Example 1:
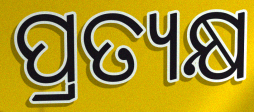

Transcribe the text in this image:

ପ୍ରତ୍ଯକ୍ଷ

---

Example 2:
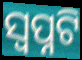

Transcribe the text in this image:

ସ୍ୱପ୍ନଟି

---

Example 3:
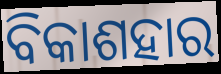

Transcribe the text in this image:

ବିକାଶହାର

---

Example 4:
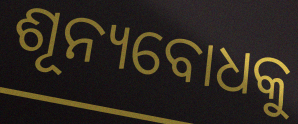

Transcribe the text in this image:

ଶୂନ୍ୟବୋଧକୁ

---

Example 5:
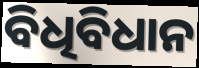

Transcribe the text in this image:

ବିଧିବିଧାନ